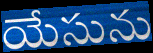
యేసును